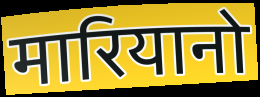
मारियानो